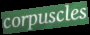
corpuscles